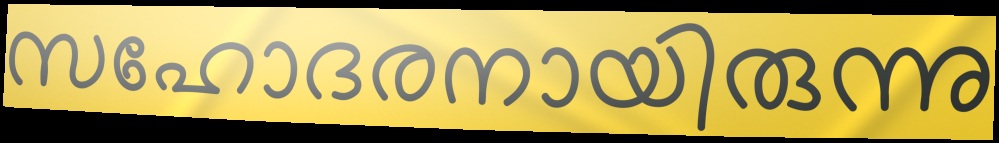
സഹോദരനായിരുന്നു